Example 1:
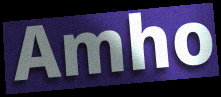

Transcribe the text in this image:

Amho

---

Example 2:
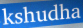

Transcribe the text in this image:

kshudha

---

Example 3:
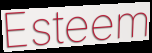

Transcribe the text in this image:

Esteem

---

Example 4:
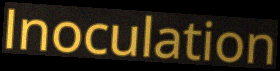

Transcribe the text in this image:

Inoculation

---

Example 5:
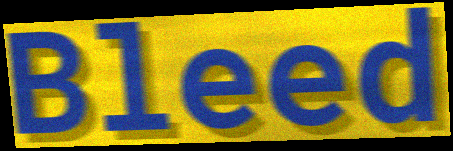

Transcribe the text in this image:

Bleed